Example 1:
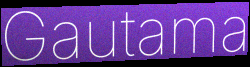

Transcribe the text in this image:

Gautama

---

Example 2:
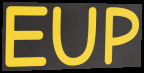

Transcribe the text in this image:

EUP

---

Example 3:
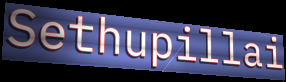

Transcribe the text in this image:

Sethupillai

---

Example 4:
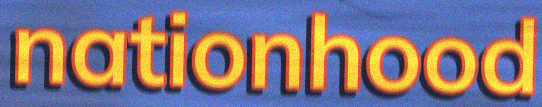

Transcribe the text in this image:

nationhood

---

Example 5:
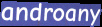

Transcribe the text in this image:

androany